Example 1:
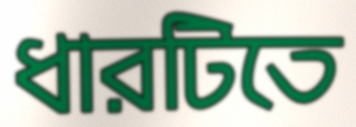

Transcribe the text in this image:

ধারটিতে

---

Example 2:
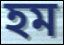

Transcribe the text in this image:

হম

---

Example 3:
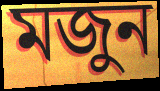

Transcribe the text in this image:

মজুন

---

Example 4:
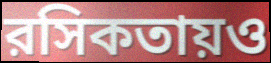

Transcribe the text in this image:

রসিকতায়ও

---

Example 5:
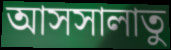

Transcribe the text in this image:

আসসালাতু